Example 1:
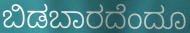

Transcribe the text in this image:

ಬಿಡಬಾರದೆಂದೂ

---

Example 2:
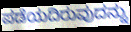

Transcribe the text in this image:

ಪಡೆಯದಿರುವುದನ್ನು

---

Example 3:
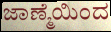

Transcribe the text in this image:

ಜಾಣ್ಮೆಯಿಂದ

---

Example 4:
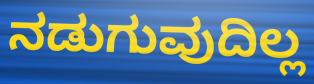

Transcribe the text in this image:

ನಡುಗುವುದಿಲ್ಲ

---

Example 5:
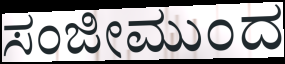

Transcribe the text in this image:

ಸಂಜೀಮುಂದ